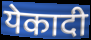
येकादी